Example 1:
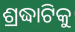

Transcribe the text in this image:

ଶ୍ରଦ୍ଧାଟିକୁ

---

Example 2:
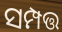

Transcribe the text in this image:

ସମ୍ପତ୍ତ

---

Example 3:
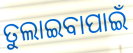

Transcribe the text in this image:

ତୁଲାଇବାପାଇଁ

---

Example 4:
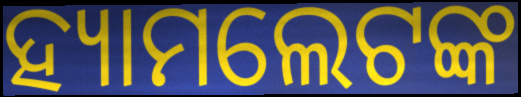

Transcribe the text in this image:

ହ୍ୟାମଲେଟଙ୍କ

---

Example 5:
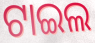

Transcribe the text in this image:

ଟାଇଲ